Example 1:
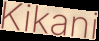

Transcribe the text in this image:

Kikani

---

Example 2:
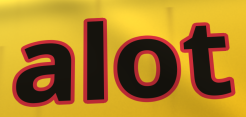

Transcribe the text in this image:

alot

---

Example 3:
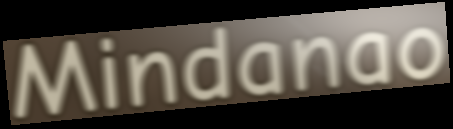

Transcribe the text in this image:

Mindanao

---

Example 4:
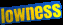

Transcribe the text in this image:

lowness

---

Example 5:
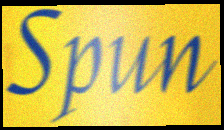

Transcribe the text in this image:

Spun